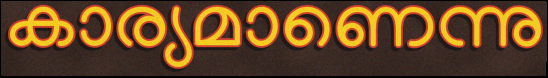
കാര്യമാണെന്നു